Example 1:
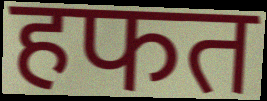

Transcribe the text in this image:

हफत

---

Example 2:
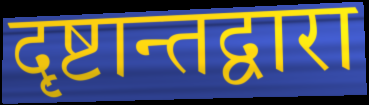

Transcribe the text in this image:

दृष्टान्तद्वारा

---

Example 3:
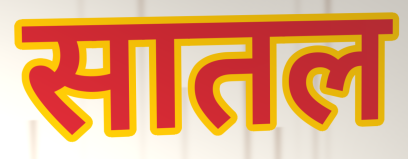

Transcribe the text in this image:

सातल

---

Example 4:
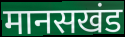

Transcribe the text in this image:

मानसखंड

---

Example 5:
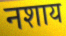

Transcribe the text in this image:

नशाय